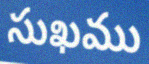
సుఖము